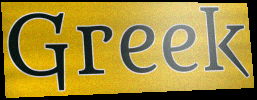
Greek